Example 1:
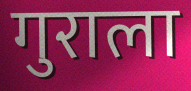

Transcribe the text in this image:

गुराला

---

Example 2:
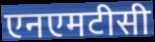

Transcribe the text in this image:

एनएमटीसी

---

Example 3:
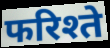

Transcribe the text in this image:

फरिश्ते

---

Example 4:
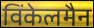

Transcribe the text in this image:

विंकेलमैन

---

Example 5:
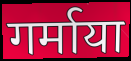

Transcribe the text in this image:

गर्माया